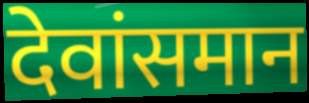
देवांसमान